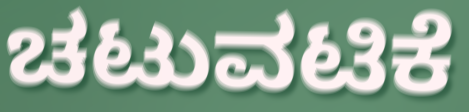
ಚಟುವಟಿಕೆ